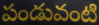
పండువంటి